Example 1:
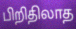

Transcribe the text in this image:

பிறிதிலாத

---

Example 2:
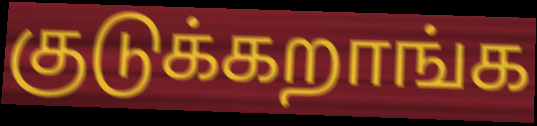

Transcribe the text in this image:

குடுக்கறாங்க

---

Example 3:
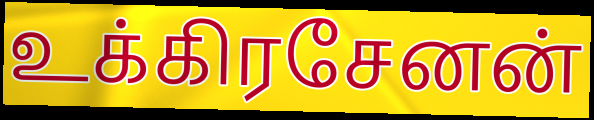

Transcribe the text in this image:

உக்கிரசேனன்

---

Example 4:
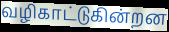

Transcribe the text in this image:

வழிகாட்டுகின்றன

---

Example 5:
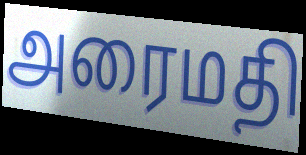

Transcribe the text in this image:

அரைமதி